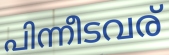
പിന്നീടവര്